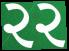
રર